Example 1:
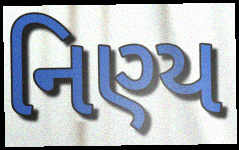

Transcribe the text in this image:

નિણ્ય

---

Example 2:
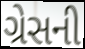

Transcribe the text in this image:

ગ્રેસની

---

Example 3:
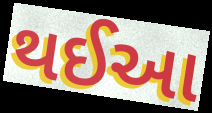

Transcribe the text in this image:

થઈઆ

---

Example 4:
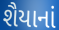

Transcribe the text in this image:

શૈયાનાં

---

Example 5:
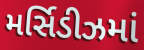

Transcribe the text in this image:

મર્સિડીઝમાં